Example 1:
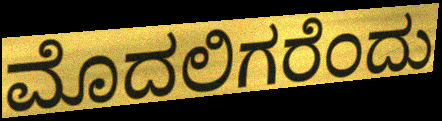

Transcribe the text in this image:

ಮೊದಲಿಗರೆಂದು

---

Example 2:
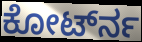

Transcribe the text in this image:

ಕೋರ್ಟ್‍ನ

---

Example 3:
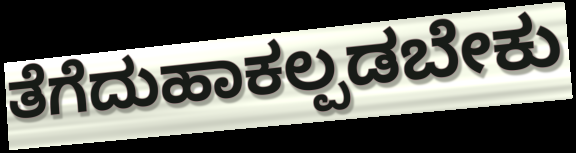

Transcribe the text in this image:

ತೆಗೆದುಹಾಕಲ್ಪಡಬೇಕು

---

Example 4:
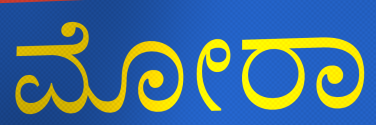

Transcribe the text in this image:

ಮೋರಾ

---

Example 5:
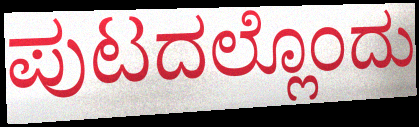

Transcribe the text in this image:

ಪುಟದಲ್ಲೊಂದು